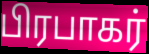
பிரபாகர்